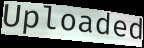
Uploaded